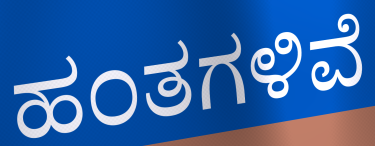
ಹಂತಗಳಿವೆ